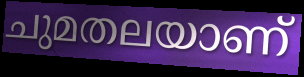
ചുമതലയാണ്